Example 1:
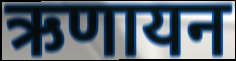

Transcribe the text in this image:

ऋणायन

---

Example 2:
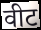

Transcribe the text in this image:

वीट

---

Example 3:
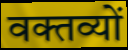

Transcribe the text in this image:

वक्‍तव्‍यों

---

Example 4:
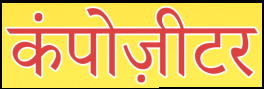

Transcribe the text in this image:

कंपोज़ीटर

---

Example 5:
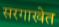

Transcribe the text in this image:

सरगाखेत